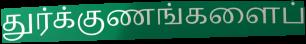
துர்க்குணங்களைப்